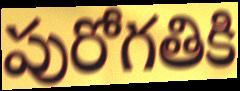
పురోగతికి